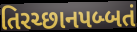
તિરચ્છાનપબ્બતં